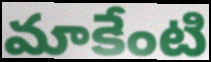
మాకేంటి